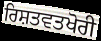
ਰਿਸ਼ਤਵਤਖੋਰੀ